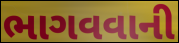
ભાગવવાની